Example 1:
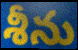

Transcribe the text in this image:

శీను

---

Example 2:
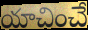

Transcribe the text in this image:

యాచించే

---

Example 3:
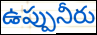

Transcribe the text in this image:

ఉప్పునీరు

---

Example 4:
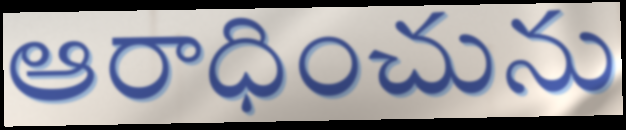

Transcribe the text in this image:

ఆరాధించును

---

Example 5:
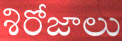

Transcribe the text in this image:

శిరోజాలు